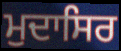
ਮੁਦਾਸਿਰ